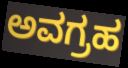
ಅವಗ್ರಹ